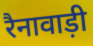
रैनावाड़ी